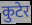
कुटेर